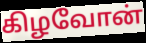
கிழவோன்